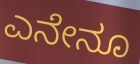
ಎನೇನೂ